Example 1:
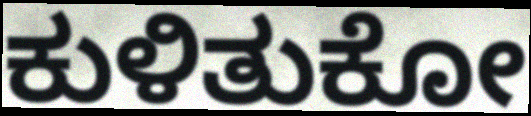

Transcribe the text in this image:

ಕುಳಿತುಕೋ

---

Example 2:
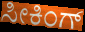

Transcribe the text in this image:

ಸೀಕಿಂಗ್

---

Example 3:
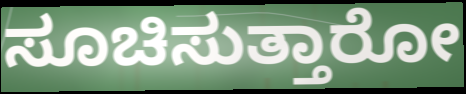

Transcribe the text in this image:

ಸೂಚಿಸುತ್ತಾರೋ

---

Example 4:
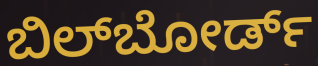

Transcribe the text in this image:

ಬಿಲ್‌ಬೋರ್ಡ್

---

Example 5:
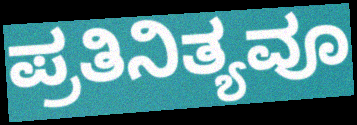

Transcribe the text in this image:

ಪ್ರತಿನಿತ್ಯವೂ